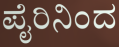
ಪೈರಿನಿಂದ